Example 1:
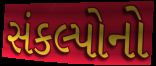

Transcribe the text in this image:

સંકલ્પોનો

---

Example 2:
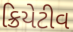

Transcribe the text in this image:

ક્રિયેટીવ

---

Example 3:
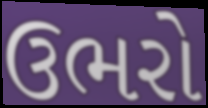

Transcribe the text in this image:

ઉભરો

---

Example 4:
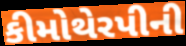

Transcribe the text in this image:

કીમોથેરપીની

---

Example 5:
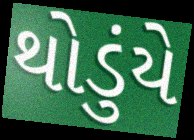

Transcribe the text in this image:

થોડુંયે